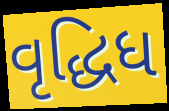
વૃદ્ધિધ